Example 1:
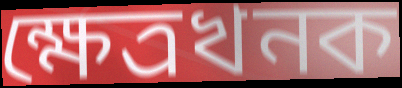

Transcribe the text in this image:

ক্ষেত্ৰখনক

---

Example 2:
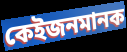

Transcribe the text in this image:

কেইজনমানক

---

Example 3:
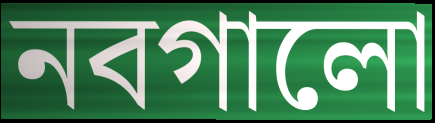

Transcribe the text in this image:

নবগালো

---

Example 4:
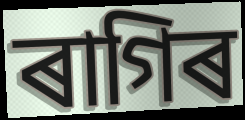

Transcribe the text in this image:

ৰাগিৰ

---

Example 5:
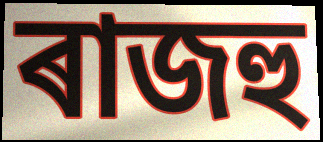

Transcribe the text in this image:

ৰাজহু